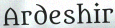
Ardeshir